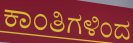
ಕಾಂತಿಗಳಿಂದ